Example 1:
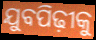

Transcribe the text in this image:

ଯୁବପିଢ଼ୀକୁ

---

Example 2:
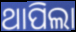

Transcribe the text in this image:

ଥାପିଲା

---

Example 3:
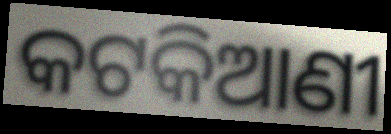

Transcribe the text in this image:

କଟକିଆଣୀ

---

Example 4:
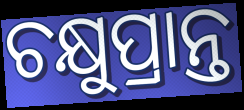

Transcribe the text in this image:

ଚକ୍ଷୁପ୍ରାନ୍ତ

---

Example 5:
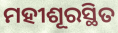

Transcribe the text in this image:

ମହୀଶୂରସ୍ଥିତ